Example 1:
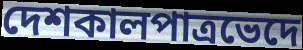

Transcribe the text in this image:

দেশকালপাত্রভেদে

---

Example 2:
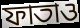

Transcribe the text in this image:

ফাতাও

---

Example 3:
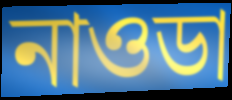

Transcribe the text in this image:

নাওডা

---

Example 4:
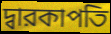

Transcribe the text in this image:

দ্বারকাপতি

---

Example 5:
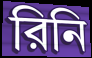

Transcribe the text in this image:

রিনি